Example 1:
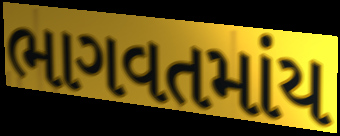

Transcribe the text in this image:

ભાગવતમાંય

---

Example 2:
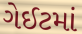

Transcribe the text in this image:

ગેઈટમાં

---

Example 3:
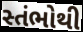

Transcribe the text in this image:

સ્તંભોથી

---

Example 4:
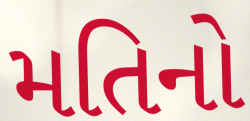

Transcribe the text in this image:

મતિનો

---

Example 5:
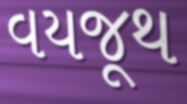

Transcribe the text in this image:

વયજૂથ